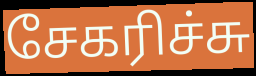
சேகரிச்சு